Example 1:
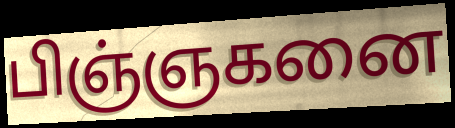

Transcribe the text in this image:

பிஞ்ஞகனை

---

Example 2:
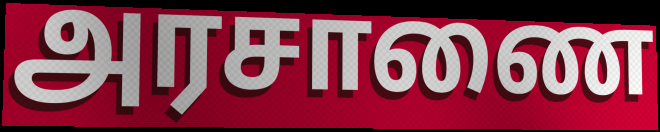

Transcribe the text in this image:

அரசாணை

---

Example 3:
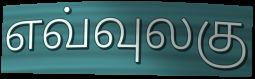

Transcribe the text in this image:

எவ்வுலகு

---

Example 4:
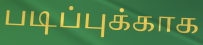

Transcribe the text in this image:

படிப்புக்காக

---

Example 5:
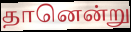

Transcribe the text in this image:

தானென்று